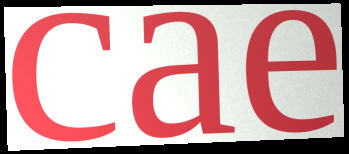
cae